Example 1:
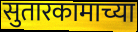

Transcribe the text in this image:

सुतारकामाच्या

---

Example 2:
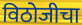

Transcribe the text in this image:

विठोजीचा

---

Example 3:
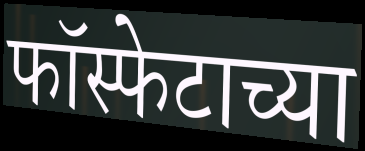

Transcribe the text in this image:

फॉस्फेटाच्या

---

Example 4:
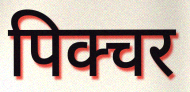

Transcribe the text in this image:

पिक्चर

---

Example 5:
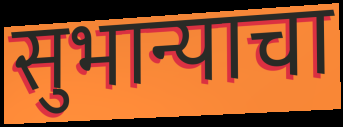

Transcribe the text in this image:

सुभान्याचा